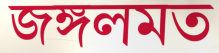
জঙ্গলমত